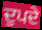
ਦੁਪਦੇ